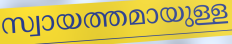
സ്വായത്തമായുള്ള